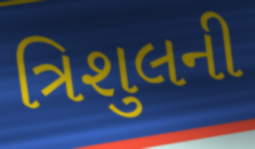
ત્રિશુલની